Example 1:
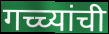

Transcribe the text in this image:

गच्च्यांची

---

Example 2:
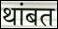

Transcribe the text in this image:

थांबत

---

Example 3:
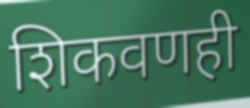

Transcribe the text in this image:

शिकवणही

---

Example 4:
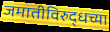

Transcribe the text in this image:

जमातीविरुद्धच्या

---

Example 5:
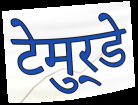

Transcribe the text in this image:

टेमुर्डे